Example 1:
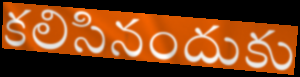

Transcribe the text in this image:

కలిసినందుకు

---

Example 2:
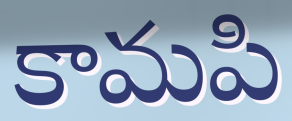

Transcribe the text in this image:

కామపి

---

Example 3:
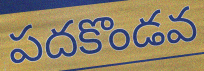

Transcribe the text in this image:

పదకొండవ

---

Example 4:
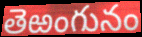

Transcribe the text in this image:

తెఱంగునం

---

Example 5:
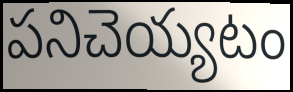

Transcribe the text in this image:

పనిచెయ్యటం